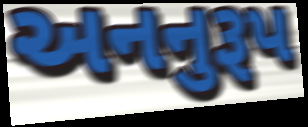
અનનુરૂપ